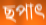
ছপাৎ